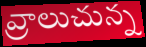
వ్రాలుచున్న